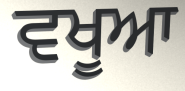
ਵਖੂਆ